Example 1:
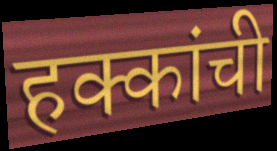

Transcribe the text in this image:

हक्कांची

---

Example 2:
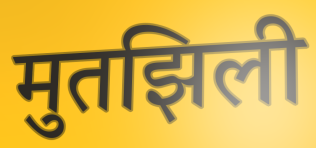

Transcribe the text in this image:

मुतझिली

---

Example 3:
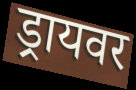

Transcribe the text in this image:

ड्रायवर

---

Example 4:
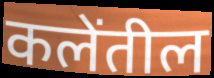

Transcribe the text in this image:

कलेंतील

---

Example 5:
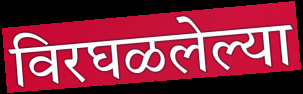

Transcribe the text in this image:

विरघळलेल्या